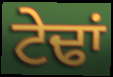
ਟੇਢਾਂ